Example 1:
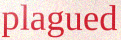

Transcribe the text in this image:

plagued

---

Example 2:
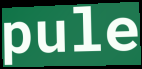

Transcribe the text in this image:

pule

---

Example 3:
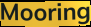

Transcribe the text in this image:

Mooring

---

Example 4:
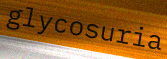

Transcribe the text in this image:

glycosuria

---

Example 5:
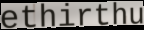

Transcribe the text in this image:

ethirthu